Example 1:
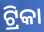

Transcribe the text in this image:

ଟ୍ରିକା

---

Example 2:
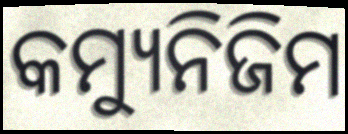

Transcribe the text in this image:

କମ୍ୟୁନିଜିମ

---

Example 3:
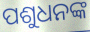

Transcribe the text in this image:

ପଶୁଧନଙ୍କ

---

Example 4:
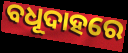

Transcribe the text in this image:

ବଧୂଦାହରେ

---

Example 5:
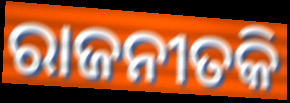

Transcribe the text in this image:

ରାଜନୀତକି